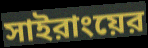
সাইরাংয়ের